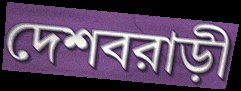
দেশবরাড়ী